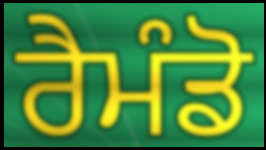
ਰੈਮੰਡੋ